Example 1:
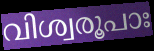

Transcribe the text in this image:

വിശ്വരൂപാഃ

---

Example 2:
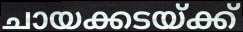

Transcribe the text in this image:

ചായക്കടയ്ക്ക്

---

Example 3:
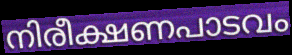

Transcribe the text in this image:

നിരീക്ഷണപാടവം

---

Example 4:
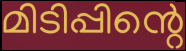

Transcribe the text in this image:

മിടിപ്പിന്റെ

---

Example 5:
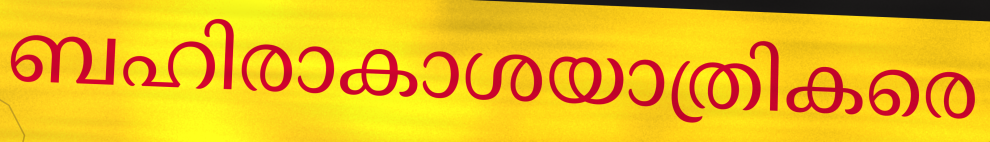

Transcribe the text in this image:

ബഹിരാകാശയാത്രികരെ